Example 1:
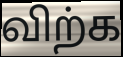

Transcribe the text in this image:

விற்க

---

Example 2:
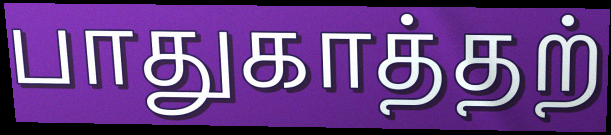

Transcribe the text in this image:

பாதுகாத்தற்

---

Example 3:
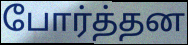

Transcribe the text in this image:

போர்த்தன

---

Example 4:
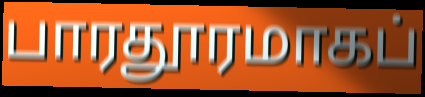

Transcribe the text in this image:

பாரதூரமாகப்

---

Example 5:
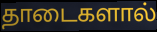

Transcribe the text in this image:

தாடைகளால்